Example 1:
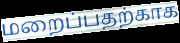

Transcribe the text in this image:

மறைப்பதற்காக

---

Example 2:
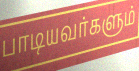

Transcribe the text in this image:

பாடியவர்களும்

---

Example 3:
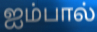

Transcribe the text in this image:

ஐம்பால்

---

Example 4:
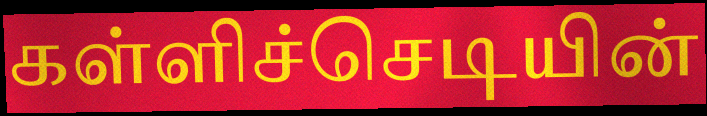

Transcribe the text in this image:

கள்ளிச்செடியின்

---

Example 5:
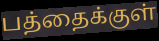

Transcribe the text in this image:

பத்தைக்குள்